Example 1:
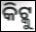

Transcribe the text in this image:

କିଟ୍କୁ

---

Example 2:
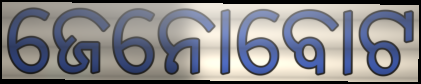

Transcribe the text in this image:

ଜେନୋବୋଟ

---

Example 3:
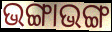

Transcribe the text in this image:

ଭଙ୍ଗାଭଙ୍ଗ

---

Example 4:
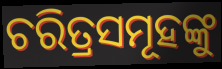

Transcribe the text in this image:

ଚରିତ୍ରସମୂହଙ୍କୁ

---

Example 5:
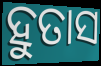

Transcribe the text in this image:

ହୁତାସ